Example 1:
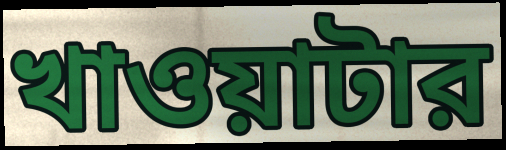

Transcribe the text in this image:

খাওয়াটার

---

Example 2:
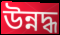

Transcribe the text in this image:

উন্নদ্ধ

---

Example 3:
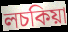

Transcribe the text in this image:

লচকিয়া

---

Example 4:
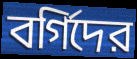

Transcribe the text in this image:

বর্গিদের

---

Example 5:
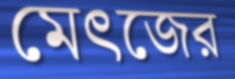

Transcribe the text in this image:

মেৎজের